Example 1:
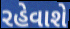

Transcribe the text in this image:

રહેવાશે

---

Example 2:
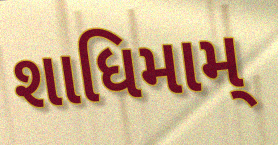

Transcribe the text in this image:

શાધિમામ્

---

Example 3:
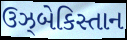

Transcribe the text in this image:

ઉઝ્બેકિસ્તાન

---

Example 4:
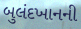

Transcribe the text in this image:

બુલંદખાનની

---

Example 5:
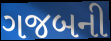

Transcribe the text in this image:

ગજબની